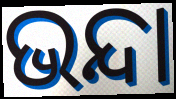
ଭନ୍ଦା